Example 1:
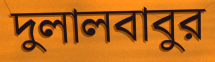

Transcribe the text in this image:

দুলালবাবুর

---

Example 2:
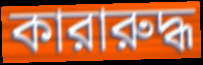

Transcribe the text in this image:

কারারুদ্ধ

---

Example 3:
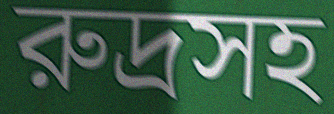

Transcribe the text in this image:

রুদ্রসহ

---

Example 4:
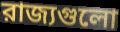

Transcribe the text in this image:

রাজ্যগুলো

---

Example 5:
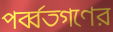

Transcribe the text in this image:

পর্ব্বতগণের